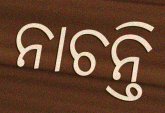
ନାଚନ୍ତି